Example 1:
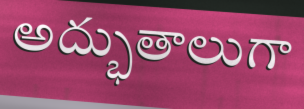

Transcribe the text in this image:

అద్భుతాలుగా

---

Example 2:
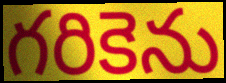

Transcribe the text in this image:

గరికెను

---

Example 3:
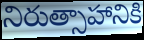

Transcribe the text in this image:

నిరుత్సాహానికి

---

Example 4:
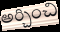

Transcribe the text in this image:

అర్చించి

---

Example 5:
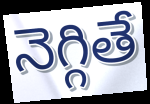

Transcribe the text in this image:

నెగ్గితే